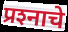
प्रश्‍नाचे